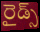
రైడ్స్